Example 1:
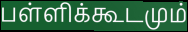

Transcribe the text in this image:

பள்ளிக்கூடமும்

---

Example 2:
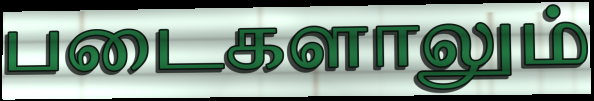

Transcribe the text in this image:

படைகளாலும்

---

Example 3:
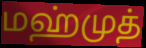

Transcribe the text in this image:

மஹ்முத்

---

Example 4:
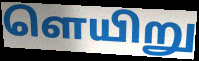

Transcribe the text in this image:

ளெயிறு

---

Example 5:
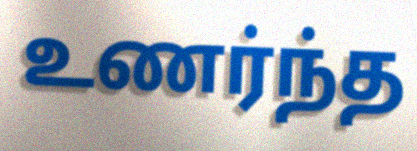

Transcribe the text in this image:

உணர்ந்த